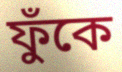
ফুঁকে